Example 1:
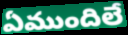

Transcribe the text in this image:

ఏముందిలే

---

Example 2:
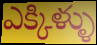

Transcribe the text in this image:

ఎక్కిళ్ళు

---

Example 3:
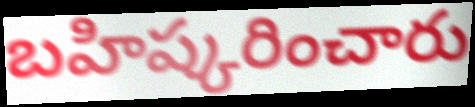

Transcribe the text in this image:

బహిష్కరించారు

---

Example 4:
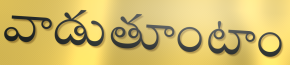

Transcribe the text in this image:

వాడుతూంటాం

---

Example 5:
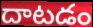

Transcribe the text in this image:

దాటడం